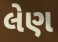
લેણ